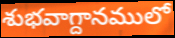
శుభవాగ్దానములో